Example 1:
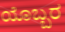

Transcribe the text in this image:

ಯೊಬ್ಬರ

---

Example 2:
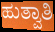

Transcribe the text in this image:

ಹುತ್ವಾತಿ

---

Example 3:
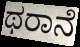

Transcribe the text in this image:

ಥರಾನೆ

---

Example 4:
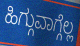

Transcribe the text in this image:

ಹಿಗ್ಗುವಾಗ್ಗೆಲ್ಲ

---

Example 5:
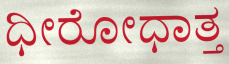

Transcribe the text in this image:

ಧೀರೋಧಾತ್ತ